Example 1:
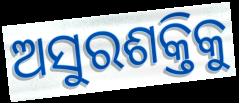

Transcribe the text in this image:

ଅସୁରଶକ୍ତିକୁ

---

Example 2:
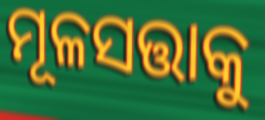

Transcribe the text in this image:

ମୂଳସତ୍ତାକୁ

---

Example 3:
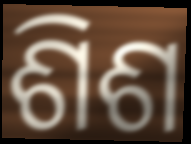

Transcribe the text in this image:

ଶିଶ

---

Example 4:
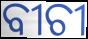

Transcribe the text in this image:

ବୀଚୀ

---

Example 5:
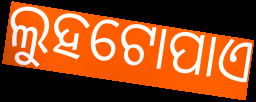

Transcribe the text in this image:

ଲୁହଟୋପାଏ